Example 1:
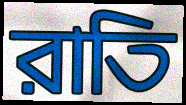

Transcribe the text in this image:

রাতি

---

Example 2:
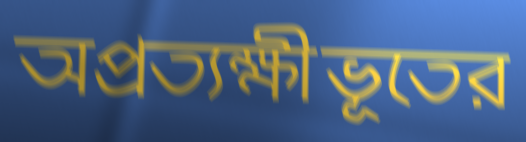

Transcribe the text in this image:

অপ্রত্যক্ষীভূতের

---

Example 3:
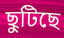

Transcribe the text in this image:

ছুটিছে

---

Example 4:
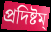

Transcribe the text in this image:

প্রদিষ্টম্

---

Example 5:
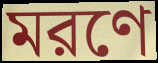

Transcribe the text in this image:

মরণে